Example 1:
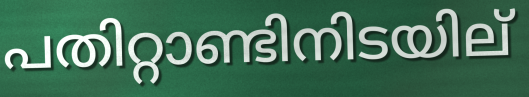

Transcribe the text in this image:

പതിറ്റാണ്ടിനിടയില്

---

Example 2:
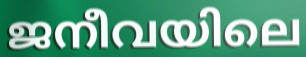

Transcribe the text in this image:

ജനീവയിലെ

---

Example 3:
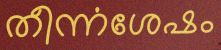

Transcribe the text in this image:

തീൎന്നശേഷം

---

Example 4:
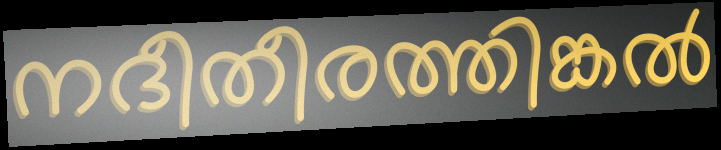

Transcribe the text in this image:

നദീതീരത്തിങ്കൽ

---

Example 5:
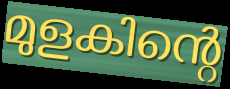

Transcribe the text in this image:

മുളകിന്റെ